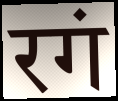
रगं